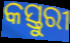
କସ୍ତୁରୀ